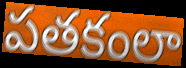
పతకంలా